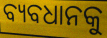
ବ୍ୟବଧାନକୁ